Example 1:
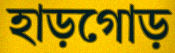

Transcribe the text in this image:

হাড়গোড়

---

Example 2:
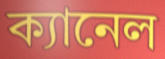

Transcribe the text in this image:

ক্যানেল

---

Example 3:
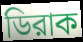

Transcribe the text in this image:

ডিরাক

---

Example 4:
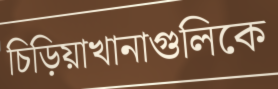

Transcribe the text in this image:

চিড়িয়াখানাগুলিকে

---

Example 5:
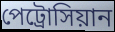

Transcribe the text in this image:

পেট্রোসিয়ান